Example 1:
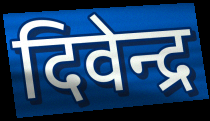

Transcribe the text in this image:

दिवेन्द्र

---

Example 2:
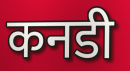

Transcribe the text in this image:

कनडी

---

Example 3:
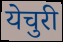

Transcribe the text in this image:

येचुरी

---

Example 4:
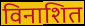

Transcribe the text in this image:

विनाशित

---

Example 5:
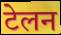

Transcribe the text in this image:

टेलन